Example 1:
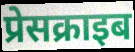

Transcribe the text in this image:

प्रेसक्राइब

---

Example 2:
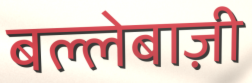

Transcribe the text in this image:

बल्‍लेबाज़ी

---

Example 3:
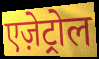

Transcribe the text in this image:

एज़ेट्रोल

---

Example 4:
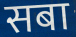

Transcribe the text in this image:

सबा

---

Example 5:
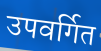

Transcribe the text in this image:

उपवर्गित